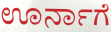
ಊರ್ನಾಗೆ